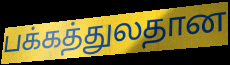
பக்கத்துலதான